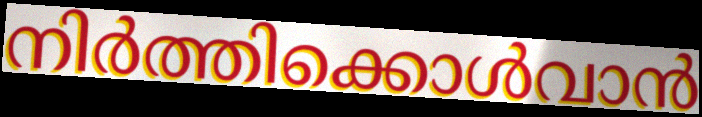
നിർത്തിക്കൊൾവാൻ